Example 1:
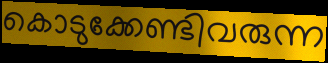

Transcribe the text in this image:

കൊടുക്കേണ്ടിവരുന്ന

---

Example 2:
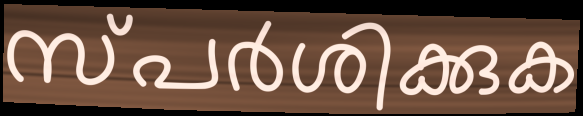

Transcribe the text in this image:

സ്പർശിക്കുക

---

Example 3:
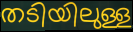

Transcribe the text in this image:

തടിയിലുള്ള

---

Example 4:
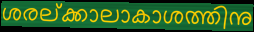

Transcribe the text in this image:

ശരല്ക്കാലാകാശത്തിനു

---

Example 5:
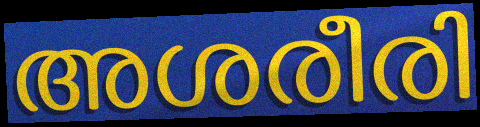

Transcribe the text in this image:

അശരീരി